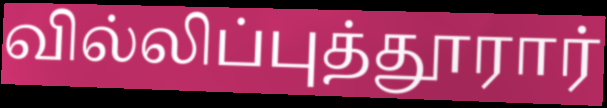
வில்லிப்புத்தூரார்